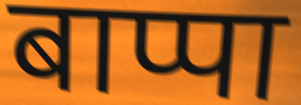
बाप्पा